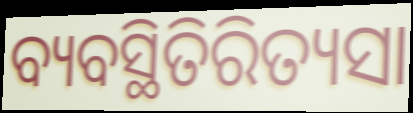
ବ୍ୟବସ୍ଥିତିରିତ୍ୟସା